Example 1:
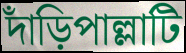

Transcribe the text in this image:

দাঁড়িপাল্লাটি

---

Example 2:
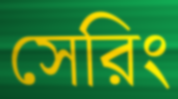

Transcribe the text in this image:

সেরিং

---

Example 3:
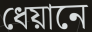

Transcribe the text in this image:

ধেয়ানে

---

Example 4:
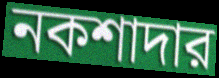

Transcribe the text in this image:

নকশাদার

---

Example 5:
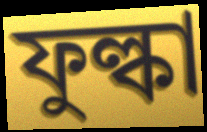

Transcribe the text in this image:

ফুল্কা